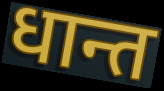
धान्त